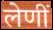
लेणीं